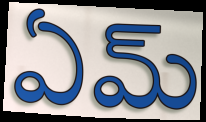
ఏమ్